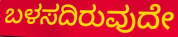
ಬಳಸದಿರುವುದೇ